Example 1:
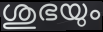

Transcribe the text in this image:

ശുഭയും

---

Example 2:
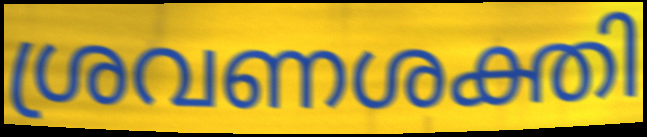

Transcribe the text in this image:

ശ്രവണശക്തി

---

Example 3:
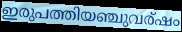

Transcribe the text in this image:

ഇരുപത്തിയഞ്ചുവര്ഷം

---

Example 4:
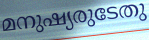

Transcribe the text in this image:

മനുഷ്യരുടേതു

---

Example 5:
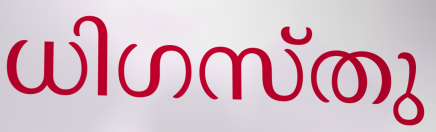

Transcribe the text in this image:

ധിഗസ്തു